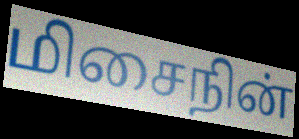
மிசைநின்